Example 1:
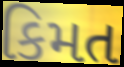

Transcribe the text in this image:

કિમત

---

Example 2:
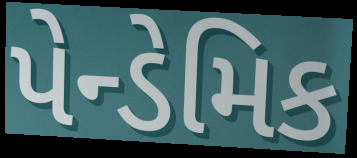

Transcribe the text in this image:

પેન્ડેમિક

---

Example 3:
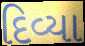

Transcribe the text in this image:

દિવ્યા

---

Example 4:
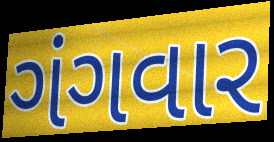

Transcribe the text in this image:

ગંગવાર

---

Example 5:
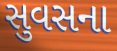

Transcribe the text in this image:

સુવસના